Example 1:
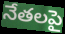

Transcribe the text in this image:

నేతలపై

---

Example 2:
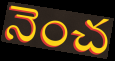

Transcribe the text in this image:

నెంచ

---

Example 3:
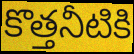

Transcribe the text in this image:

కొత్తనీటికి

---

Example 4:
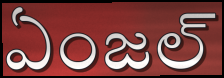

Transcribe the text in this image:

ఏంజల్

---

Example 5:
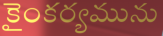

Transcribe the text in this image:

కైంకర్యమును